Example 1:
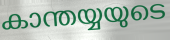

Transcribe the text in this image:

കാന്തയ്യയുടെ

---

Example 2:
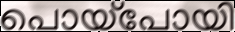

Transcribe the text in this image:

പൊയ്പോയി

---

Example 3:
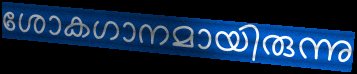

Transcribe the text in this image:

ശോകഗാനമായിരുന്നു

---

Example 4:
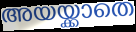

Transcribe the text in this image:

അയയ്ക്കാതെ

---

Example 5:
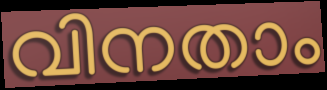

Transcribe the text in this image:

വിനതാം